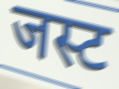
जस्ट